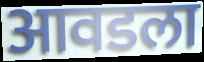
आवडला